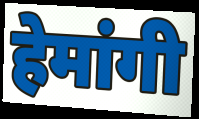
हेमांगी